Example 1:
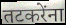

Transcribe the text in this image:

तटकरेंना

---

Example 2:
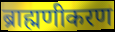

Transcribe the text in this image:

ब्राह्मणीकरण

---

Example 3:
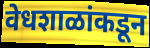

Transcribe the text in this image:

वेधशाळांकडून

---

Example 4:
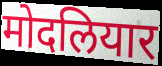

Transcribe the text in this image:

मोदलियार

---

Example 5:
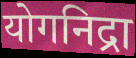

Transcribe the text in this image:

योगनिद्रा